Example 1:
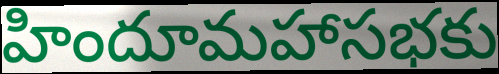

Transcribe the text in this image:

హిందూమహాసభకు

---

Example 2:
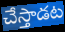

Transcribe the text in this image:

చేస్తాడట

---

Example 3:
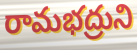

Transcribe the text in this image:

రామభద్రుని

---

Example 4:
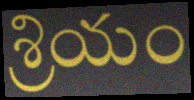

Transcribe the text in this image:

శ్రియం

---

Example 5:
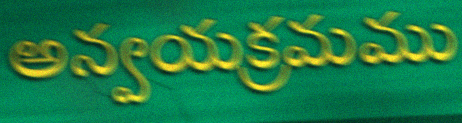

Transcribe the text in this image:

అన్వయక్రమము